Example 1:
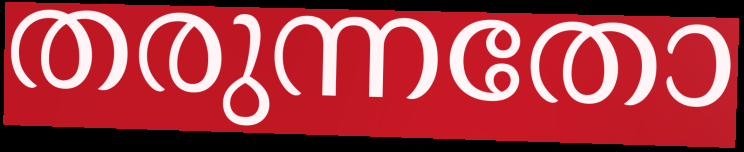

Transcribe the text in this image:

തരുന്നതോ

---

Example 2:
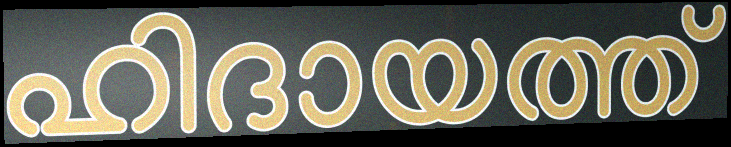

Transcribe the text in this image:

ഹിദായത്ത്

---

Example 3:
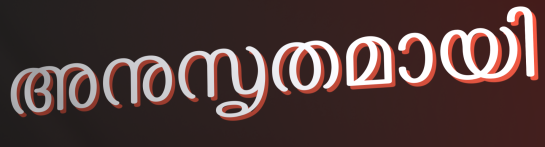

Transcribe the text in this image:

അനുസൃതമായി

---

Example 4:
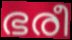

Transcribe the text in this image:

ഭരീ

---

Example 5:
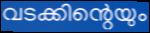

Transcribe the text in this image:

വടക്കിന്റെയും